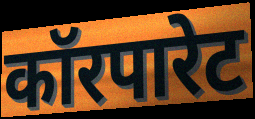
कॉरपारेट